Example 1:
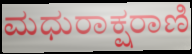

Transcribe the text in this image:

ಮಧುರಾಕ್ಷರಾಣಿ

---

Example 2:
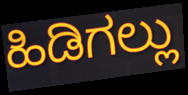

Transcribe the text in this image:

ಹಿಡಿಗಲ್ಲು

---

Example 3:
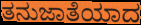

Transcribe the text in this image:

ತನುಜಾತೆಯಾದ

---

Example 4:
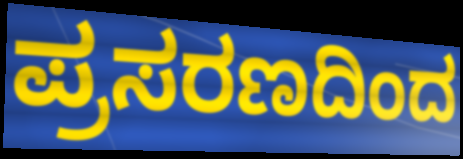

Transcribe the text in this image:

ಪ್ರಸರಣದಿಂದ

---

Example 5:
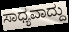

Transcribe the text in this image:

ಸಾಧ್ಯವಾದ್ದು